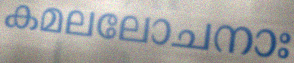
കമലലോചനാഃ